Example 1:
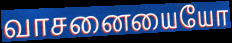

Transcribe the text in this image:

வாசனையையோ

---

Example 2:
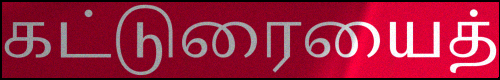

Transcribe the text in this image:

கட்டுரையைத்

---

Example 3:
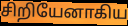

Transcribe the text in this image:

சிறியேனாகிய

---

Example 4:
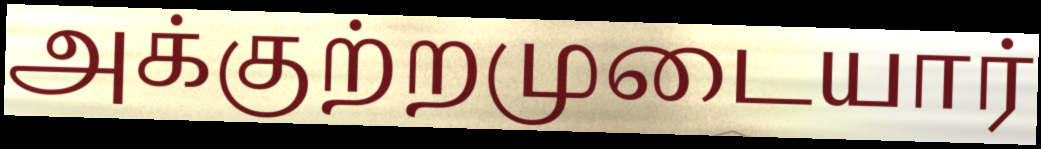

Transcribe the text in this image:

அக்குற்றமுடையார்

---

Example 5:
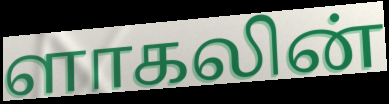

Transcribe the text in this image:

ளாகலின்